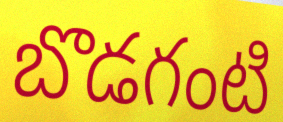
బొడగంటి